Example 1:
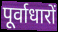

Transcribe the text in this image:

पूर्वाधारों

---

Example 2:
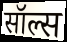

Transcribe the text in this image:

सॉल्स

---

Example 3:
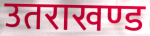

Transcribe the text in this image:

उतराखण्ड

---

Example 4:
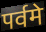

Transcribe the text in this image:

पर्वमे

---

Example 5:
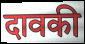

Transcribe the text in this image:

दावकी